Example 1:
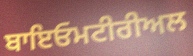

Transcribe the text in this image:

ਬਾਇਓਮਟੀਰੀਅਲ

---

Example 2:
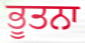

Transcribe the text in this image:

ਭੂਤਨਾ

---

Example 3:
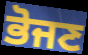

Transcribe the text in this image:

ਭੋਜਣ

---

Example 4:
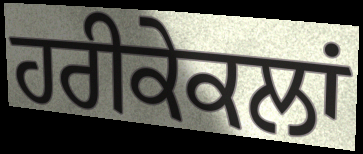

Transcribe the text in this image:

ਹਰੀਕੇਕਲਾਂ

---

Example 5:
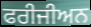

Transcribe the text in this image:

ਫਰੀਜੀਅਨ